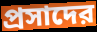
প্রসাদের